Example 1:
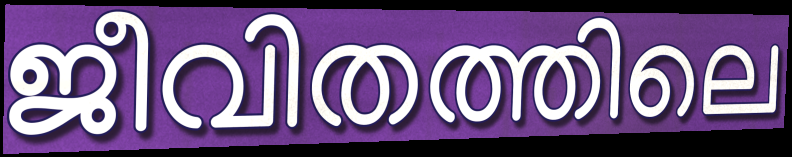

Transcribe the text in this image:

ജീവിതത്തിലെ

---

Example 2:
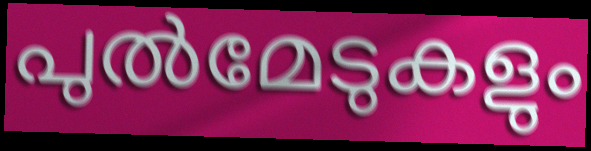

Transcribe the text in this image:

പുൽമേടുകളും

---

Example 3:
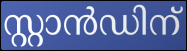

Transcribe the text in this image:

സ്റ്റാൻഡിന്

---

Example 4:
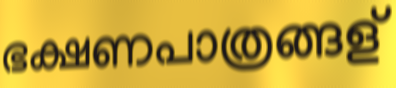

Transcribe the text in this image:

ഭക്ഷണപാത്രങ്ങള്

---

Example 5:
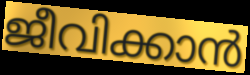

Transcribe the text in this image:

ജീവിക്കാൻ